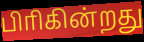
பிரிகின்றது